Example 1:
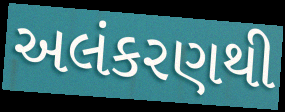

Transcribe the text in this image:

અલંકરણથી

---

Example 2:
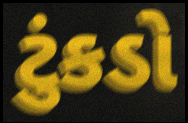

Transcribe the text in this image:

ટુંકડો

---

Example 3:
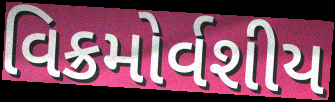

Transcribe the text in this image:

વિક્રમોર્વશીય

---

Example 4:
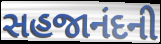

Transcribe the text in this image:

સહજાનંદની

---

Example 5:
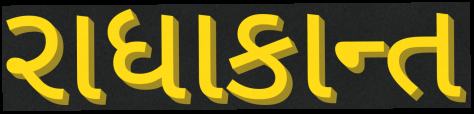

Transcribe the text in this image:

રાધાકાન્ત